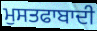
ਮੁਸਤਫਾਬਾਦੀ